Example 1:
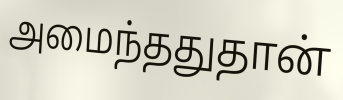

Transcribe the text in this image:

அமைந்ததுதான்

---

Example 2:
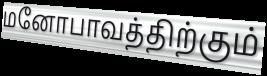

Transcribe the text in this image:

மனோபாவத்திற்கும்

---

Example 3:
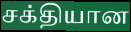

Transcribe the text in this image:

சக்தியான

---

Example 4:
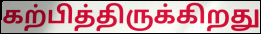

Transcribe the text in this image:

கற்பித்திருக்கிறது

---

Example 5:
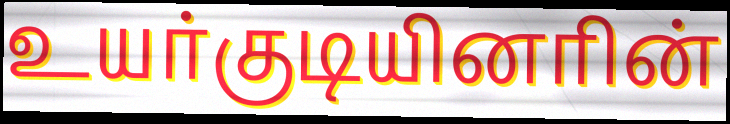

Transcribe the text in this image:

உயர்குடியினரின்